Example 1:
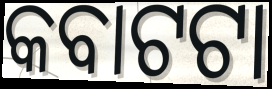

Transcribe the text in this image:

କବାଟଟା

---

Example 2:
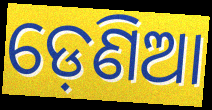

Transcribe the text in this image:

ଡ଼େଣିଆ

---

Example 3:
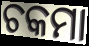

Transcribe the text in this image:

ଚକମା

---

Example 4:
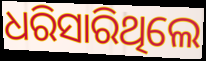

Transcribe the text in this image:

ଧରିସାରିଥିଲେ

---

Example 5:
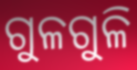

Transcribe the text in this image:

ଗୁଳଗୁଳି